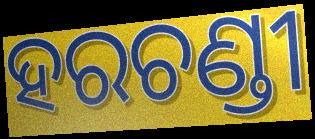
ହରଚଣ୍ଡୀ